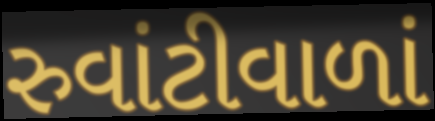
રુવાંટીવાળાં